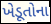
ખેડૂતોના